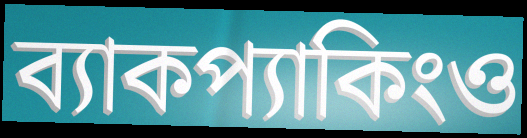
ব্যাকপ্যাকিংও